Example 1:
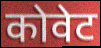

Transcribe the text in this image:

कोवेट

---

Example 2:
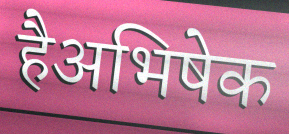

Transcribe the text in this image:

हैअभिषेक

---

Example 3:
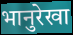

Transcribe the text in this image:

भानुरेखा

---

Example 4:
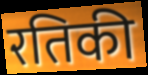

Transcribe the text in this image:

रतिकी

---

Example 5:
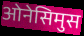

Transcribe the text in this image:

ओनेसिमुस